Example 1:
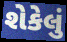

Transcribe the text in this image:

શેકેલું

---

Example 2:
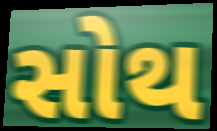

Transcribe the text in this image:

સોથ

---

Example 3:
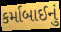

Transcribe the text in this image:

કર્માબાઈનું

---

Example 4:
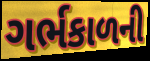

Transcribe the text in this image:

ગર્ભકાળની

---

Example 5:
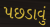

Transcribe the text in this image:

પછડાવું